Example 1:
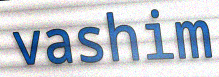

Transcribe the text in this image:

vashim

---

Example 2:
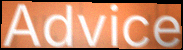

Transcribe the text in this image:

Advice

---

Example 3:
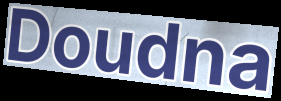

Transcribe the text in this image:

Doudna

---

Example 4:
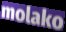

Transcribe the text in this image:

molako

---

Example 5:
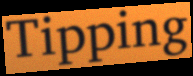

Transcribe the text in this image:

Tipping